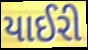
યાઈરી